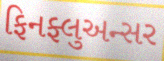
ફિનફ્લુઅન્સર